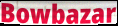
Bowbazar